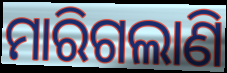
ମାରିଗଲାଣି